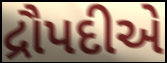
દ્રૌપદીએ